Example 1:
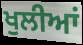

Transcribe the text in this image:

ਖੁਲੀਆਂ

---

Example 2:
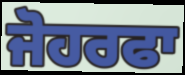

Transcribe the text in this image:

ਜੋਹਰਫਾ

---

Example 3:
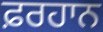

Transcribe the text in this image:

ਫ਼ਰਹਾਨ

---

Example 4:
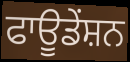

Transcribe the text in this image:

ਫਾਊਡੇਂਸ਼ਨ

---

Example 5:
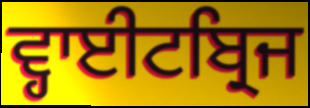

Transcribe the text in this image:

ਵ੍ਹਾਈਟਬ੍ਰਿਜ